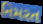
નિમરત